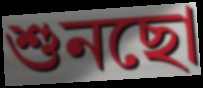
শুনছো